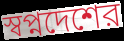
স্বপ্নদেশের